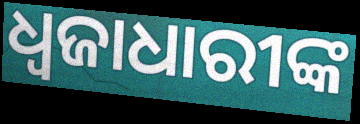
ଧ୍ଵଜାଧାରୀଙ୍କ